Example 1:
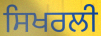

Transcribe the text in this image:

ਸਿਖਰਲੀ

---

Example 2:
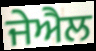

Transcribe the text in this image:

ਜੇਐਲ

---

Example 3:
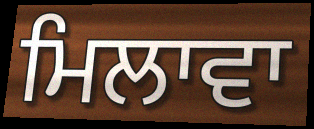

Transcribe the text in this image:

ਮਿਲਾਵਾ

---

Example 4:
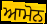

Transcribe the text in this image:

ਆਮੋਨ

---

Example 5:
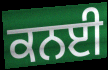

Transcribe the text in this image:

ਕਨਈ